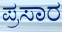
ಪ್ರಸಾರ